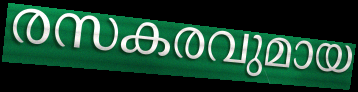
രസകരവുമായ